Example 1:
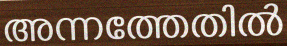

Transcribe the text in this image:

അന്നത്തേതിൽ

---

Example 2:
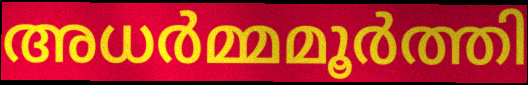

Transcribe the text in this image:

അധർമ്മമൂർത്തി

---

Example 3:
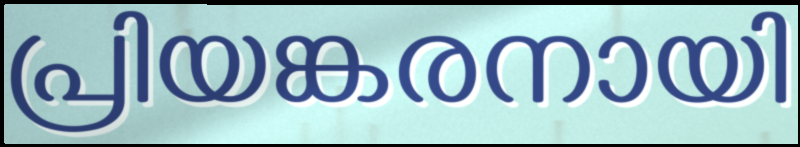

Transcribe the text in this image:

പ്രിയങ്കരനായി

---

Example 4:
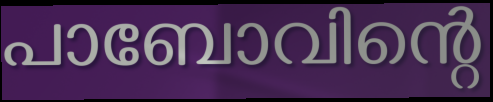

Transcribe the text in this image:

പാബോവിന്റെ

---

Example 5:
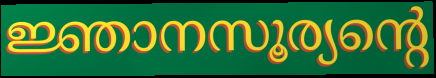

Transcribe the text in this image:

ജ്ഞാനസൂര്യന്റെ